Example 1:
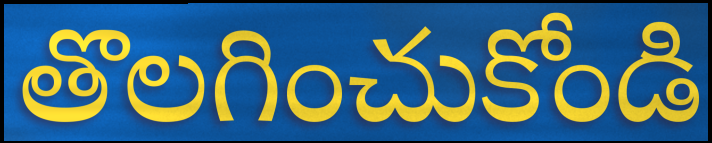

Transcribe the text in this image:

తొలగించుకోండి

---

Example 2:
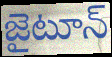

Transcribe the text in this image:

జైటూన్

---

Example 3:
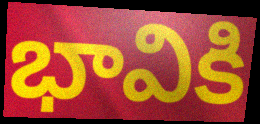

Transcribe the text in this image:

భావికి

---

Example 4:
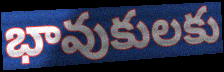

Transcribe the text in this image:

భావుకులకు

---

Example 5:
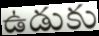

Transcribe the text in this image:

ఉడుకు